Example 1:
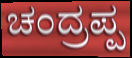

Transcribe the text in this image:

ಚಂದ್ರಪ್ಪ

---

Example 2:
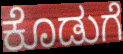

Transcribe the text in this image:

ಕೊಡುಗೆ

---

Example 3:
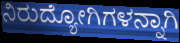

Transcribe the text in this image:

ನಿರುದ್ಯೋಗಿಗಳನ್ನಾಗಿ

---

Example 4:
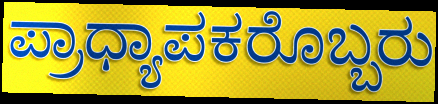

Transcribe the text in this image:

ಪ್ರಾಧ್ಯಾಪಕರೊಬ್ಬರು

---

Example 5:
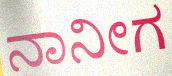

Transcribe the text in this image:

ನಾನೀಗ